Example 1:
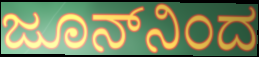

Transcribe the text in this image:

ಜೂನ್‌ನಿಂದ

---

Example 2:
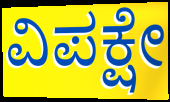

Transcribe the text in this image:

ವಿಪಕ್ಷೇ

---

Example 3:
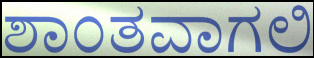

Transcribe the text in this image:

ಶಾಂತವಾಗಲಿ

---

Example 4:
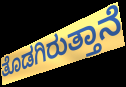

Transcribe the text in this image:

ತೊಡಗಿರುತ್ತಾನೆ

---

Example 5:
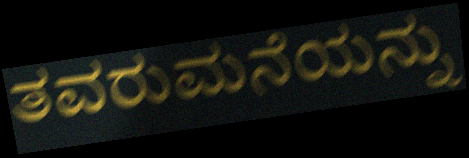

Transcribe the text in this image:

ತವರುಮನೆಯನ್ನು